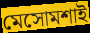
মেসোমশাই